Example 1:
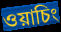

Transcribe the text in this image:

ওয়াচিং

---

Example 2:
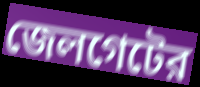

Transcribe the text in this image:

জেলগেটের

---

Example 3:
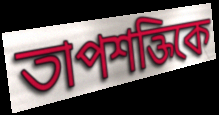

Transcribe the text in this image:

তাপশক্তিকে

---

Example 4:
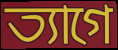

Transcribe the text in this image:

ত্যাগে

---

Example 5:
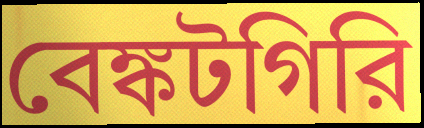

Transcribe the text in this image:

বেঙ্কটগিরি